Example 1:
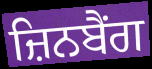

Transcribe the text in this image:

ਜ਼ਿਨਬੈਂਗ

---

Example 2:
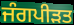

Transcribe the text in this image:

ਜੰਗਪੀੜਤ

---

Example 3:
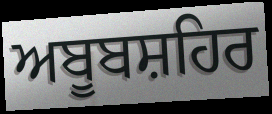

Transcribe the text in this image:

ਅਬੂਬਸ਼ਹਿਰ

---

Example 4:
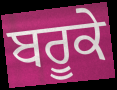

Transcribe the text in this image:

ਬਰੂਕੇ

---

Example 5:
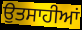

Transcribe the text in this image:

ਉਤਸਾਹੀਆਂ